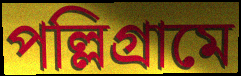
পল্লিগ্রামে